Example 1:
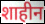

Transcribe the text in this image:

शाहीन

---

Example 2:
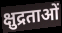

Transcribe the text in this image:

क्षुद्रताओं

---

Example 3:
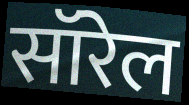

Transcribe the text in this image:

सॉरेल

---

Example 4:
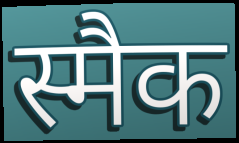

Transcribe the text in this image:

स्मैक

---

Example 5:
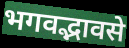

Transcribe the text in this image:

भगवद्भावसे